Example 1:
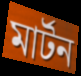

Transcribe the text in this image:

মার্টন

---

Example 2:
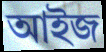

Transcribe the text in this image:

আইজ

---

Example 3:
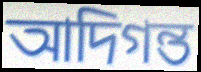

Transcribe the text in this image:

আদিগন্ত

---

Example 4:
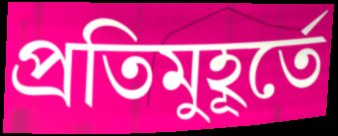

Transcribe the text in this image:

প্রতিমুহূর্তে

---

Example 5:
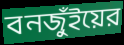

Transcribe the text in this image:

বনজুঁইয়ের